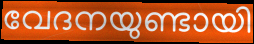
വേദനയുണ്ടായി